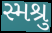
સ્મશ્રુ